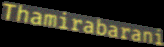
Thamirabarani